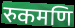
रुकमणि